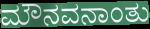
ಮೌನವನಾಂತು